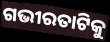
ଗଭୀରତାଟିକୁ